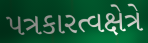
પત્રકારત્વક્ષેત્રે